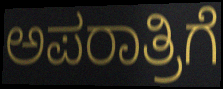
ಅಪರಾತ್ರಿಗೆ